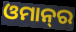
ଓମାନ୍‌ର